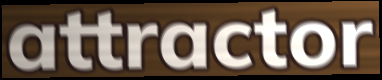
attractor